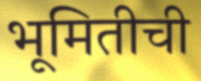
भूमितीची